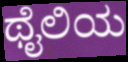
ಥೈಲಿಯ